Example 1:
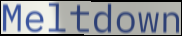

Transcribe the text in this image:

Meltdown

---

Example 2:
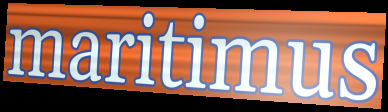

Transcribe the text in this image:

maritimus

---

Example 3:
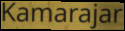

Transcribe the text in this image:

Kamarajar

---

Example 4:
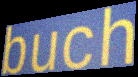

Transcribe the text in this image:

buch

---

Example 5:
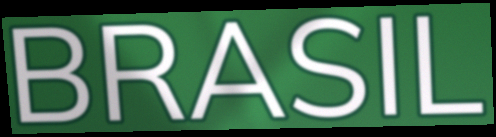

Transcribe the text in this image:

BRASIL